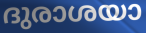
ദുരാശയാ